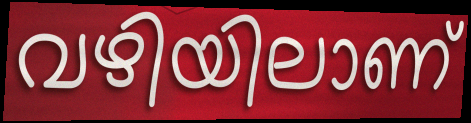
വഴിയിലാണ്